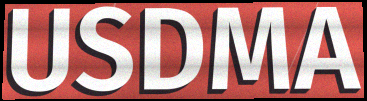
USDMA